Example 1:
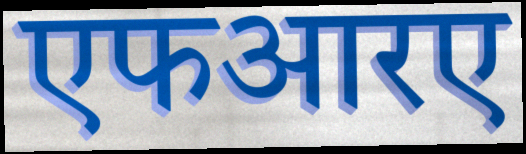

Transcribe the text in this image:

एफआरए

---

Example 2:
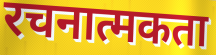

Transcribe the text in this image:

रचनात्मकता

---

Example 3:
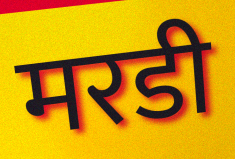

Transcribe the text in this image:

मरडी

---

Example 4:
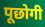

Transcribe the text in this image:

पूछोगी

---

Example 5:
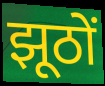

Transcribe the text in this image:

झूठों